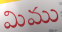
మిము